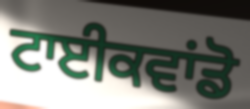
ਟਾਈਕਵਾਂਡੋ